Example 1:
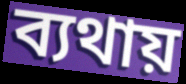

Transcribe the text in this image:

ব্যথায়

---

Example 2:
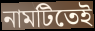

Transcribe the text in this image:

নামটিতেই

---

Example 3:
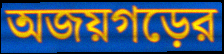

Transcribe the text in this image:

অজয়গড়ের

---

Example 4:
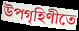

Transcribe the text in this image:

উপগৃহিণীতে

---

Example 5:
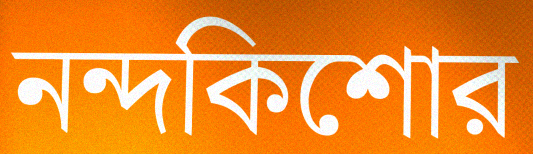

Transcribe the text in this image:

নন্দকিশোর